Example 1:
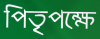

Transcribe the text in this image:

পিতৃপক্ষে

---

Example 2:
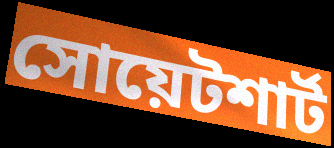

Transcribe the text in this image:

সোয়েটশার্ট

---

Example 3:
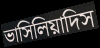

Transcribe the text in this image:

ভাসিলিয়াদিস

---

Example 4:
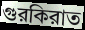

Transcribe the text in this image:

গুরকিরাত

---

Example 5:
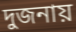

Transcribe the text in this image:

দুজনায়